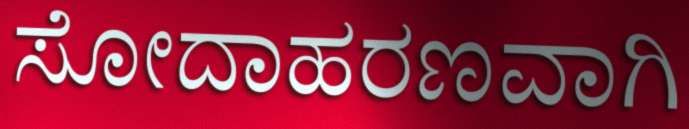
ಸೋದಾಹರಣವಾಗಿ